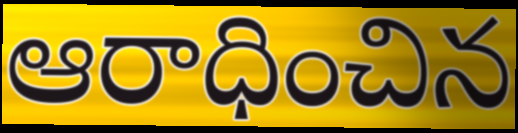
ఆరాధించిన